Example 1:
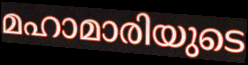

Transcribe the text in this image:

മഹാമാരിയുടെ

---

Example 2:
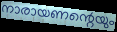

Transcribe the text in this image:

നാരായണന്റെയും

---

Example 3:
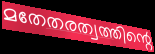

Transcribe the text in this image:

മതേതരത്വത്തിന്റെ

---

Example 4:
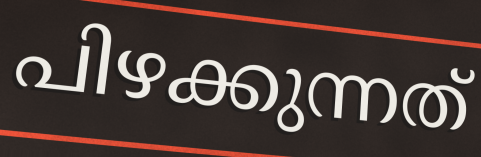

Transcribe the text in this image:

പിഴക്കുന്നത്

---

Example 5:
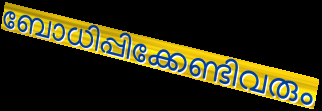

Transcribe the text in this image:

ബോധിപ്പിക്കേണ്ടിവരും